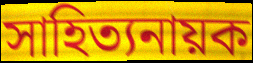
সাহিত্যনায়ক